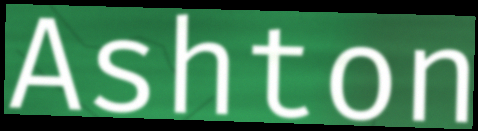
Ashton